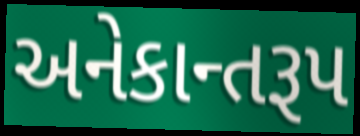
અનેકાન્તરૂપ